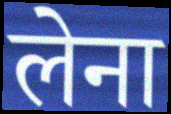
लेना